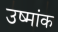
उष्मांक